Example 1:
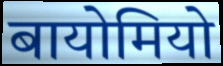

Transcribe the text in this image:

बायोमियो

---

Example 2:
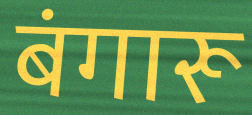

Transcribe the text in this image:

बंगारू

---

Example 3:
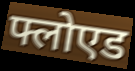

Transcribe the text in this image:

फ्लोएड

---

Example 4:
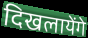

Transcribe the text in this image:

दिखलायेंगे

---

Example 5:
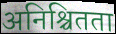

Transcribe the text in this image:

अनिश्चितता